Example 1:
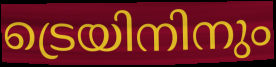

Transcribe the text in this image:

ട്രെയിനിനും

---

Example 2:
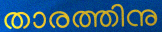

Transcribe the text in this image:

താരത്തിനു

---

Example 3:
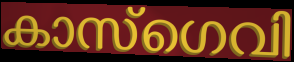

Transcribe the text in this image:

കാസ്ഗെവി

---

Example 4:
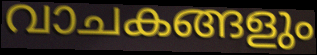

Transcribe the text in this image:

വാചകങ്ങളും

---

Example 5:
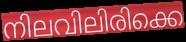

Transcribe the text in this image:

നിലവിലിരിക്കെ